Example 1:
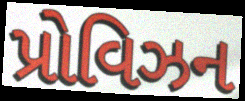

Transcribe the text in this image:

પ્રોવિઝન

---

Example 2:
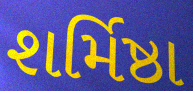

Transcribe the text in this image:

શર્મિષ્ઠા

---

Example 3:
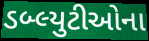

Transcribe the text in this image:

ડબ્લ્યુટીઓના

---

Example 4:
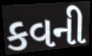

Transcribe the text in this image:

કવની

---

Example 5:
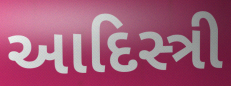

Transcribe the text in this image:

આદિસ્ત્રી